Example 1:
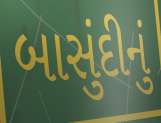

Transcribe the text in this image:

બાસુંદીનું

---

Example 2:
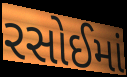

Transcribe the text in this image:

રસોઈમાં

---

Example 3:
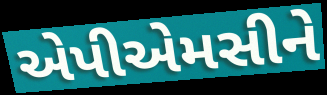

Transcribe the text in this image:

એપીએમસીને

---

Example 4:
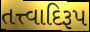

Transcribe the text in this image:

તત્ત્વાદિરૂપ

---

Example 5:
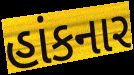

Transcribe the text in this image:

હાંકનાર